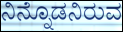
ನಿನ್ನೊಡನಿರುವ